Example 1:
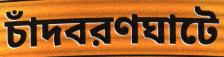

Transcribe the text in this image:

চাঁদবরণঘাটে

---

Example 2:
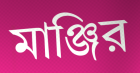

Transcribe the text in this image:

মাঞ্জির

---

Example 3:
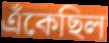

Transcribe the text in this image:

এঁকেছিল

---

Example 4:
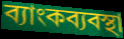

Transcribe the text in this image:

ব্যাংকব্যবস্থা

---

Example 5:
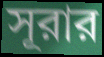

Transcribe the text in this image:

সূরার